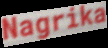
Nagrika